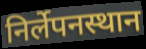
निर्लेपनस्थान